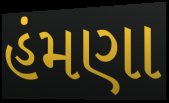
હંમણા